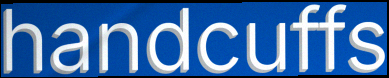
handcuffs